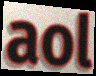
aol